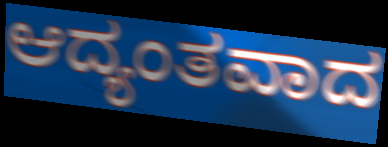
ಆದ್ಯಂತವಾದ